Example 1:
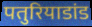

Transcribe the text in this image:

पतुरियाडांड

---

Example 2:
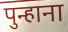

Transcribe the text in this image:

पुन्हाना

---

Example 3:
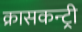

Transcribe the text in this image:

क्रासकन्ट्री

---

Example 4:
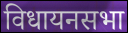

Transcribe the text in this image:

विधायनसभा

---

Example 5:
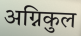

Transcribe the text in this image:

अग्निकुल